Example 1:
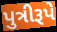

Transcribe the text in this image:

પુત્રીરૂપે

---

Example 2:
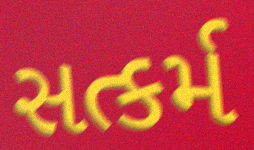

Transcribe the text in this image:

સત્કર્મ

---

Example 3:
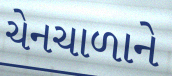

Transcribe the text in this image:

ચેનચાળાને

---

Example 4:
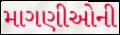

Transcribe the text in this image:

માગણીઓની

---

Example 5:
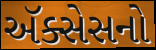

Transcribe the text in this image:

ઍક્સેસનો